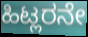
ಹಿಟ್ಲರನೇ